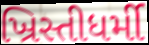
ખ્રિસ્તીધર્મી